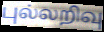
புல்லறிவு